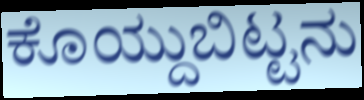
ಕೊಯ್ದುಬಿಟ್ಟನು